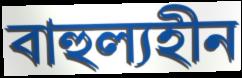
বাহুল্যহীন